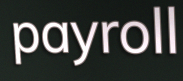
payroll